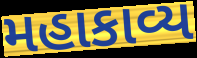
મહાકાવ્ય